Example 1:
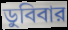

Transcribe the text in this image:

ডুবিবার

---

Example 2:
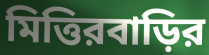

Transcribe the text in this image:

মিত্তিরবাড়ির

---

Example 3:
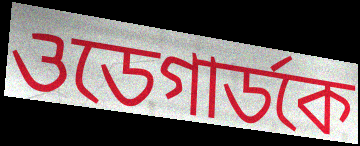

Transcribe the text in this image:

ওডেগার্ডকে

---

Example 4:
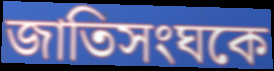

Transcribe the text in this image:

জাতিসংঘকে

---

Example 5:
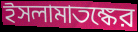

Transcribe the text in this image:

ইসলামাতঙ্কের